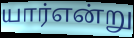
யார்என்று